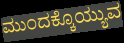
ಮುಂದಕ್ಕೊಯ್ಯುವ